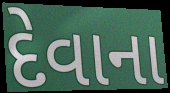
દેવાના